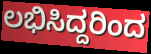
ಲಭಿಸಿದ್ದರಿಂದ